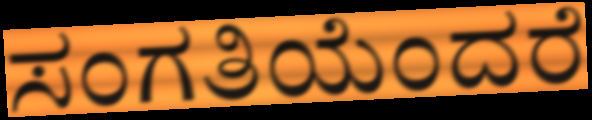
ಸಂಗತಿಯೆಂದರೆ